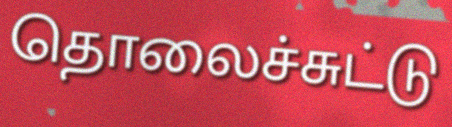
தொலைச்சுட்டு